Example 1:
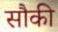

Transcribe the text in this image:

सौकी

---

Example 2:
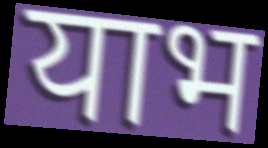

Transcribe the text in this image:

याभ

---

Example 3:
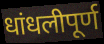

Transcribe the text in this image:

धांधलीपूर्ण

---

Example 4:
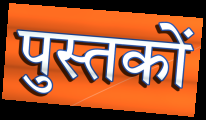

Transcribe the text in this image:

पुस्‍तकों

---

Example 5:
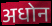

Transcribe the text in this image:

अधोन